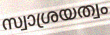
സ്വാശ്രയത്വം